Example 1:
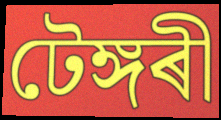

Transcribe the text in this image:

টেঙ্গৰী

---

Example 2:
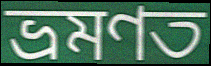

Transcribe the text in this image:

ভ্ৰমণত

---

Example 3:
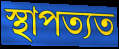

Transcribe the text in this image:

স্থাপত্যত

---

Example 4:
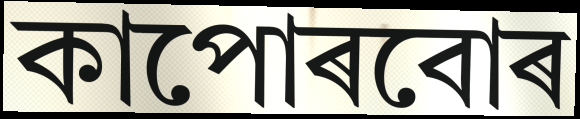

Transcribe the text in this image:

কাপোৰবোৰ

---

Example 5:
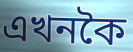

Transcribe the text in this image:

এখনকৈ